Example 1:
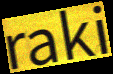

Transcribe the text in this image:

raki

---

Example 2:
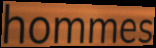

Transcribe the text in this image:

hommes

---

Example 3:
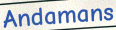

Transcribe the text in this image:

Andamans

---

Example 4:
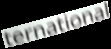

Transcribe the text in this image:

ternational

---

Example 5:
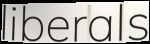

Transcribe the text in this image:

liberals